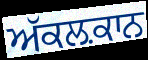
ਅੱਕਲ਼ਕਾਨ